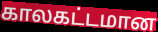
காலகட்டமான